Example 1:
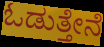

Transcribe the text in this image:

ಓಡುತ್ತೇನೆ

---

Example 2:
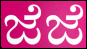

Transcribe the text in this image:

ಜೆಜೆ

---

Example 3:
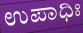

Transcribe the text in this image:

ಉಪಾಧಿಃ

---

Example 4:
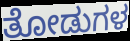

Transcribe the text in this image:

ತೋಡುಗಳ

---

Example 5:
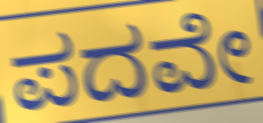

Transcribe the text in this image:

ಪದವೇ